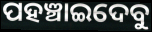
ପହଞ୍ଚାଇଦେବୁ